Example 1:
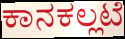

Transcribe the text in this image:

ಕಾನಕಲ್ಲಟೆ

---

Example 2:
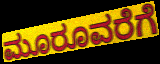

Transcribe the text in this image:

ಮೂರೂವರೆಗೆ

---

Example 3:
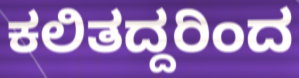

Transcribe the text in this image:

ಕಲಿತದ್ದರಿಂದ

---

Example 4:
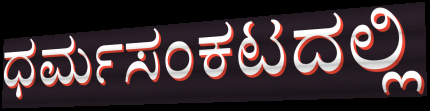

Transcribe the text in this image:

ಧರ್ಮಸಂಕಟದಲ್ಲಿ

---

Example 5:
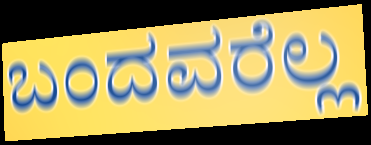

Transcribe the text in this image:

ಬಂದವರೆಲ್ಲ